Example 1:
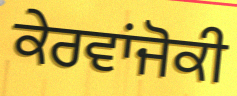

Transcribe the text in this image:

ਕੇਰਵਾਂਜੋਕੀ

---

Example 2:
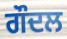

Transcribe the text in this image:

ਗੌਦਲ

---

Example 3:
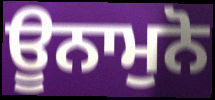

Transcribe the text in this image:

ਊਨਾਮੁਨੋ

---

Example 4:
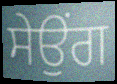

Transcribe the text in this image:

ਸੇਉਂਗ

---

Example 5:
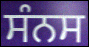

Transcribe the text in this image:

ਸੰਨਸ